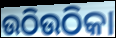
ଉଠିଉଠିକା